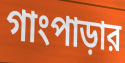
গাংপাড়ার